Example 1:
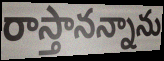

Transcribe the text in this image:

రాస్తానన్నాను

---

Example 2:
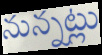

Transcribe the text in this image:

నున్నట్లు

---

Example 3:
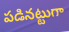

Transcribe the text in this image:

పడినట్టుగా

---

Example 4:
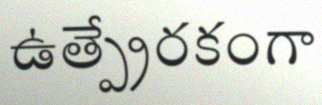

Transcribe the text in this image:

ఉత్ప్రేరకంగా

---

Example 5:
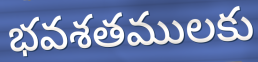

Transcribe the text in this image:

భవశతములకు